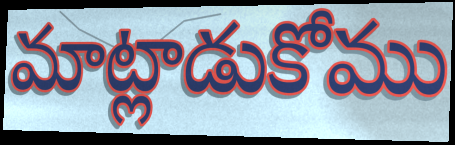
మాట్లాడుకోము